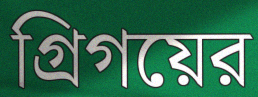
গ্রিগয়ের